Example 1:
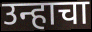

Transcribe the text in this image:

उन्हाचा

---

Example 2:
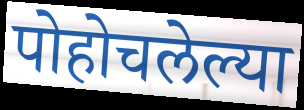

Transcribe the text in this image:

पोहोचलेल्या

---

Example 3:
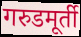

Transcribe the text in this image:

गरुडमूर्ती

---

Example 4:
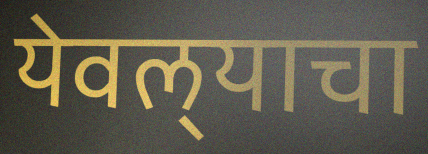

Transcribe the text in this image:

येवल्याचा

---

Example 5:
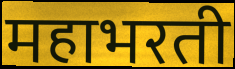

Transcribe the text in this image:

महाभरती